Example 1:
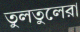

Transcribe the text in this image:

তুলতুলেরা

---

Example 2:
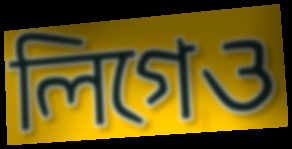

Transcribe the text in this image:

লিগেও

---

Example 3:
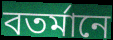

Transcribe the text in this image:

বতর্মানে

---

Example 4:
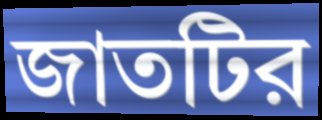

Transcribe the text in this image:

জাতটির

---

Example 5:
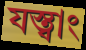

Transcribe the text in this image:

যস্ত্বাং